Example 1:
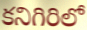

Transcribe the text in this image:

కనిగిరిలో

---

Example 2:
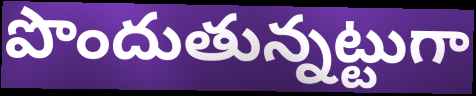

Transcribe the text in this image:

పొందుతున్నట్టుగా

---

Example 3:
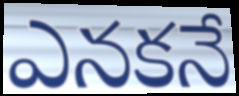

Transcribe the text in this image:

ఎనకనే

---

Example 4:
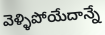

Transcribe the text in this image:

వెళ్ళిపోయేదాన్నే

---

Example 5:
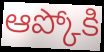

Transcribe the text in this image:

ఆప్కోకి